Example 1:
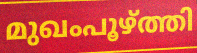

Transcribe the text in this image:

മുഖംപൂഴ്ത്തി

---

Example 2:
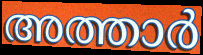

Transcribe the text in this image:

അത്താർ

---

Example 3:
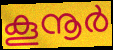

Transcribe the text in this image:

കൂനൂർ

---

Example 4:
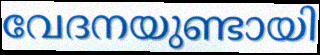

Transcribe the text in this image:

വേദനയുണ്ടായി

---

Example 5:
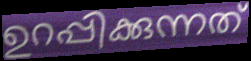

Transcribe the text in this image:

ഉറപ്പിക്കുന്നത്